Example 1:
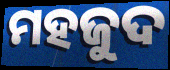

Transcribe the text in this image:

ମହଜୁଦ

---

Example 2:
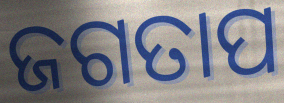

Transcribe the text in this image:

ଜଗତାପ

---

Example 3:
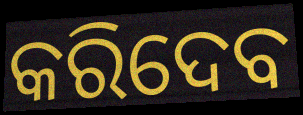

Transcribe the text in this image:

କରିଦେବ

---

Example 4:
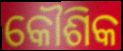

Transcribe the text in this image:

କୌଶିକ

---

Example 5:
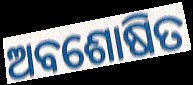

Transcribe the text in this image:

ଅବଶୋଷିତ